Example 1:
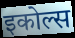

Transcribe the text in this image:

इकोल्स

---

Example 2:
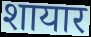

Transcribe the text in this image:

शायार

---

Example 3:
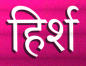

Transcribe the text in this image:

हिर्श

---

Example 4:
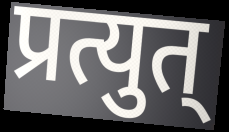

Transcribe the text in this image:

प्रत्युत्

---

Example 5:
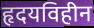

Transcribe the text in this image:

हृदयविहीन